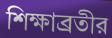
শিক্ষাব্রতীর